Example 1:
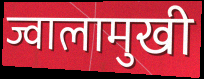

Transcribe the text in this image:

ज्‍वालामुखी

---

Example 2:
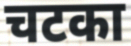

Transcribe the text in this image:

चटका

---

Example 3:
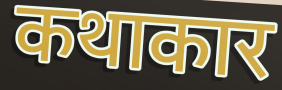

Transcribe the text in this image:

कथाकार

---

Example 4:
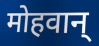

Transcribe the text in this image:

मोहवान्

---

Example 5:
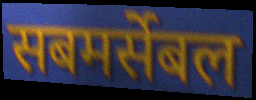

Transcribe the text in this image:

सबमर्सेबल